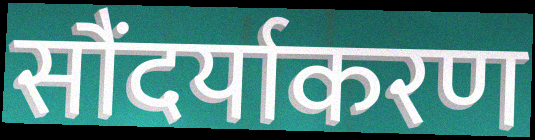
सौंदर्याकरण